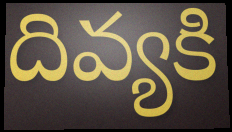
దివ్యకి